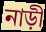
নাড়ী